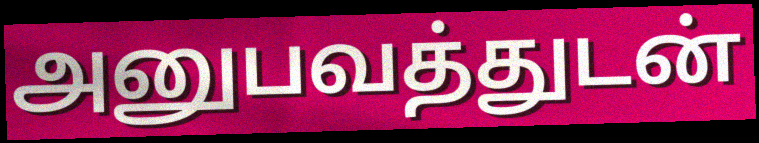
அனுபவத்துடன்